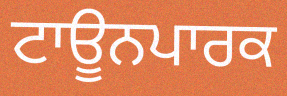
ਟਾਊਨਪਾਰਕ